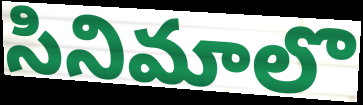
సినిమాలొ